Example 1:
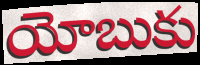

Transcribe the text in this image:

యోబుకు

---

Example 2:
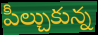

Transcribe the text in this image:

పీల్చుకున్న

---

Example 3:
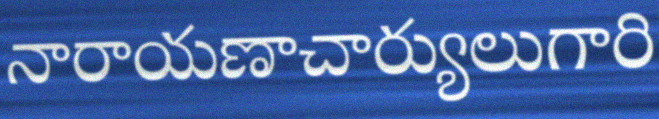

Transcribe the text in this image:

నారాయణాచార్యులుగారి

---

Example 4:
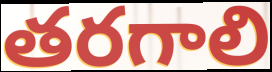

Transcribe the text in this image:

తరగాలి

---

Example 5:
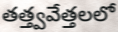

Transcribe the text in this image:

తత్త్వవేత్తలలో